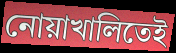
নোয়াখালিতেই